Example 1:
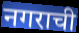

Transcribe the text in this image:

नगराची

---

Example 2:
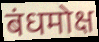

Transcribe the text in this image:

बंधमोक्ष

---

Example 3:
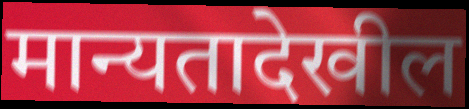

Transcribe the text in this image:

मान्यतादेखील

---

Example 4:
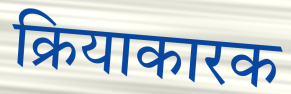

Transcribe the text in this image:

क्रियाकारक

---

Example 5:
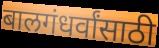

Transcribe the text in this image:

बालगंधर्वांसाठी